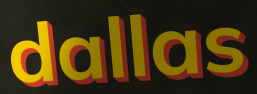
dallas